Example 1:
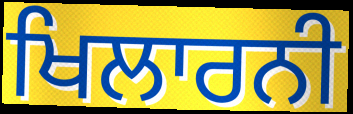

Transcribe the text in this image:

ਖਿਲਾਰਨੀ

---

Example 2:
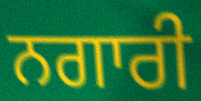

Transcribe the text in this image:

ਨਗਾਰੀ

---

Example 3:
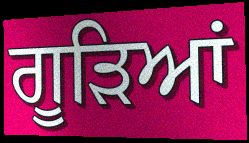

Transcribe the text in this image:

ਗੂੜਿਆਂ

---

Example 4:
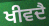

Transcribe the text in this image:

ਖੀਵਦੈ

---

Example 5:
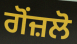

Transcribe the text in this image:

ਗੋਂਜ਼ਲੋ